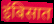
इंबिसात